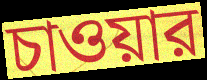
চাওয়ার